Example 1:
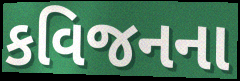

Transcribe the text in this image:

કવિજનના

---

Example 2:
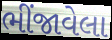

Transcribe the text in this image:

ભીંજાવેલા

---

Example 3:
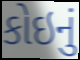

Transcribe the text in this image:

કોઇનું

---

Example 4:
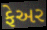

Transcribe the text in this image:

ફેઅર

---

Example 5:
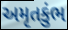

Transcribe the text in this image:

અમૃતકુંભ